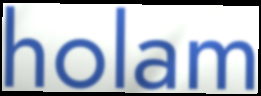
holam